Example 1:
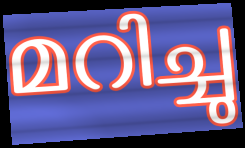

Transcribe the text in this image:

മറിച്ചു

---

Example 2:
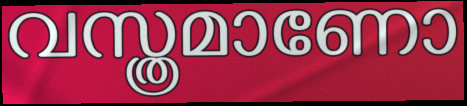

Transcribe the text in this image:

വസ്ത്രമാണോ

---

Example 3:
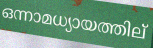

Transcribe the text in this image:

ഒന്നാമധ്യായത്തില്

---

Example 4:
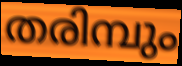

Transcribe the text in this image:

തരിമ്പും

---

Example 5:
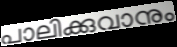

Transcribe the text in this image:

പാലിക്കുവാനും